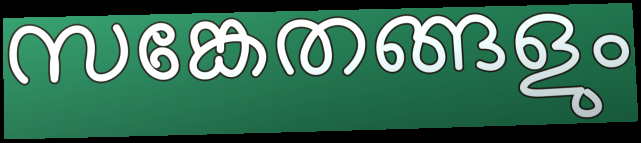
സങ്കേതങ്ങളും